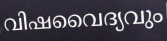
വിഷവൈദ്യവും